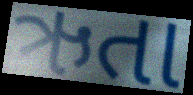
ઋતા